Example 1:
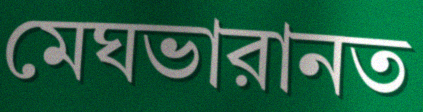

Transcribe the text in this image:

মেঘভারানত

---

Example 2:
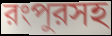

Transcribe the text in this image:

রংপুরসহ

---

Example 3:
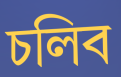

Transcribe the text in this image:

চলিব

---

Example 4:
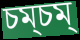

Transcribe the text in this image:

চম্চম্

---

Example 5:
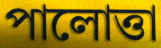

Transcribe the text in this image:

পালোত্তা